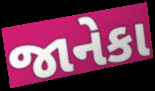
જાનેકા